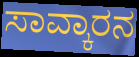
ಸಾವ್ಕಾರನ